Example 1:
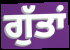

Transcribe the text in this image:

ਗੁੱਤਾਂ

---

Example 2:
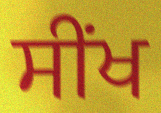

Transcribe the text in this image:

ਸੀਂਖ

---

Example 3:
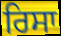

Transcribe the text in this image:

ਰਿਸਾ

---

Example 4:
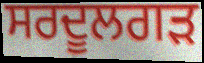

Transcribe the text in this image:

ਸਰਦੂਲਗੜ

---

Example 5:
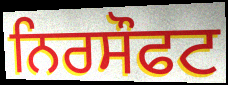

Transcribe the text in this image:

ਨਿਰਸੌਫਟ